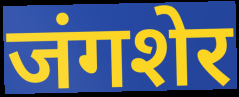
जंगशेर